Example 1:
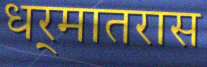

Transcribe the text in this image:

धर्मातरास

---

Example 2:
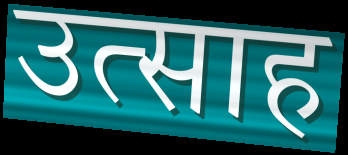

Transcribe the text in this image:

उत्साह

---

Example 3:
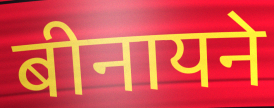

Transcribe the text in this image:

बीनायने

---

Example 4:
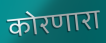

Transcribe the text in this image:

कोरणारा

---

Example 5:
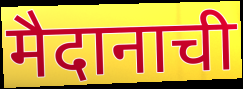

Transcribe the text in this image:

मैदानाची